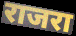
राजरा